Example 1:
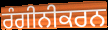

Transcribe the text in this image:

ਰੰਗੀਨੀਕਰਨ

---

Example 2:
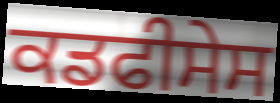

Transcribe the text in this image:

ਕਡਫੀਸੇਸ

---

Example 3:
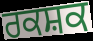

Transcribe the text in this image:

ਰਕਸ਼ਕ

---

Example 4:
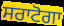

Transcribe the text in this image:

ਸਰਾਟੋਗਾ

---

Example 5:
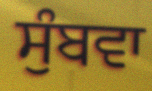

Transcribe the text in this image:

ਸੁੰਬਵਾ